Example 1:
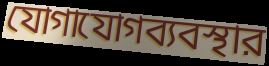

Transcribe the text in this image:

যোগাযোগব্যবস্থার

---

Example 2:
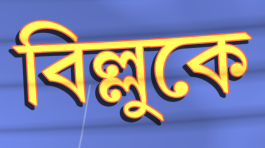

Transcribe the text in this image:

বিল্লুকে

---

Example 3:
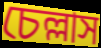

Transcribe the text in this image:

চেল্লাস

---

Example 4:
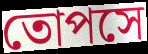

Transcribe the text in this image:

তোপসে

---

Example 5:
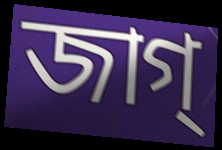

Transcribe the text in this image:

জাগ্